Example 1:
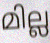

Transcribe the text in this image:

മില്ല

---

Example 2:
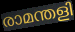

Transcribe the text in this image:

രാമന്തളി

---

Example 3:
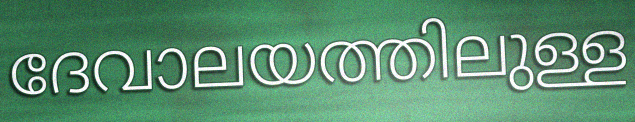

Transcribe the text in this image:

ദേവാലയത്തിലുള്ള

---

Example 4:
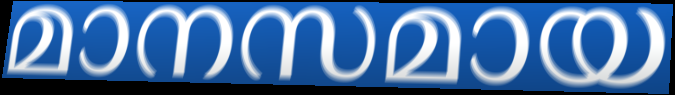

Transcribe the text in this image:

മാനസമായ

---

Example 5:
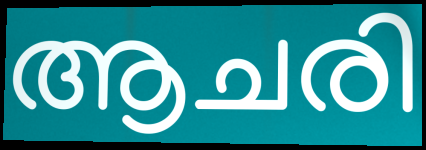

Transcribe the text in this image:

ആചരി